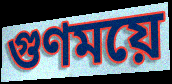
গুণময়ে